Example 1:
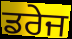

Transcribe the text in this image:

ਡਰੇਜ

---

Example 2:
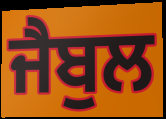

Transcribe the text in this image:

ਜੈਬੁਲ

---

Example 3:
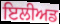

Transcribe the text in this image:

ਇਲੀਅਡ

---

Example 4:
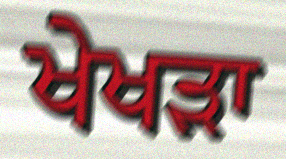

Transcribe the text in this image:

ਖੇਖੜਾ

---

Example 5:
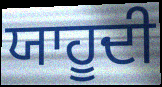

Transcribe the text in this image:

ਯਾਹੂਦੀ